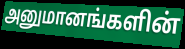
அனுமானங்களின்